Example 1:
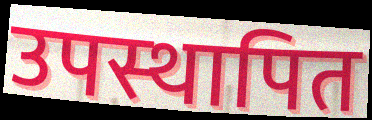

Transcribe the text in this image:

उपस्थापित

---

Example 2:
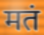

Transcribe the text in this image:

मतं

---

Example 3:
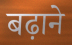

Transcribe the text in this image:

बढ़ाने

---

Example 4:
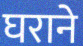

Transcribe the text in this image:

घराने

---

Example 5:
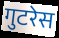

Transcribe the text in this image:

गुटरेस